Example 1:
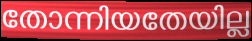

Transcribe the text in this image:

തോന്നിയതേയില്ല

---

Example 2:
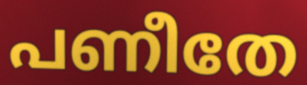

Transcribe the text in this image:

പണീതേ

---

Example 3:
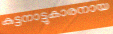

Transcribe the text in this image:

കുട്ടനാട്ടുകാരനായ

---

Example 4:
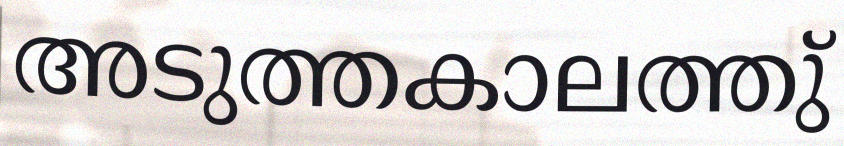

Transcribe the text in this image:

അടുത്തകാലത്തു്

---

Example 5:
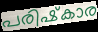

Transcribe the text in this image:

പരിഷ്‌കാര